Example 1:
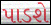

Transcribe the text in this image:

પાડશે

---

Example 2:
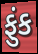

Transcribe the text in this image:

ફુંક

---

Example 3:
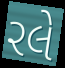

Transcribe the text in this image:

રલે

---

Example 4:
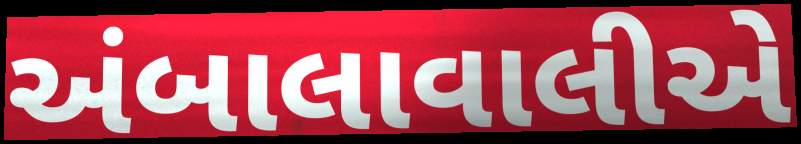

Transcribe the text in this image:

અંબાલાવાલીએ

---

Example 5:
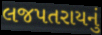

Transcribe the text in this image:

લજપતરાયનું